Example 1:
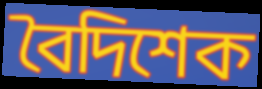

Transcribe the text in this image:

বৈদিশেক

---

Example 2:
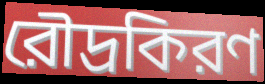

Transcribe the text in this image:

রৌদ্রকিরণ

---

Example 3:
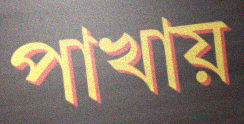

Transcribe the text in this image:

পাখায়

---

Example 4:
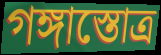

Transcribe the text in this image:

গঙ্গাস্তোত্র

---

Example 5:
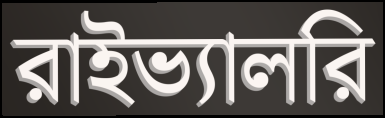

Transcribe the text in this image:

রাইভ্যালরি